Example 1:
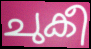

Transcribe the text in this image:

ചുകീ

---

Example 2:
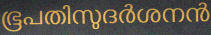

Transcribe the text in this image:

ഭൂപതിസുദർശനൻ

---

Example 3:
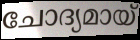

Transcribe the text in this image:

ചോദ്യമായ്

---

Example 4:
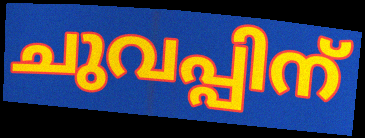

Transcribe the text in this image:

ചുവപ്പിന്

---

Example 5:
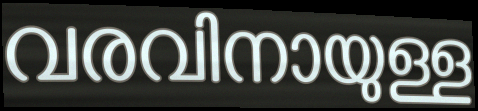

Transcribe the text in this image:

വരവിനായുള്ള